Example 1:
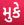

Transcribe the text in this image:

મુકે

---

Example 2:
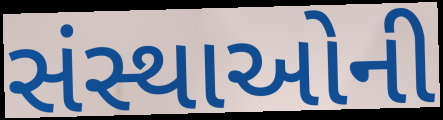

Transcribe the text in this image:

સંસ્થાઓની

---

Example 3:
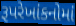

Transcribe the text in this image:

રૂપરેખાંકનોમાં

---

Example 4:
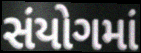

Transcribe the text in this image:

સંયોગમાં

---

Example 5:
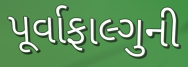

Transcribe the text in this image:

પૂર્વાફાલ્ગુની